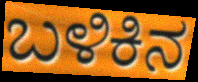
ಬಳಿಕಿನ